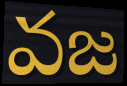
వజ